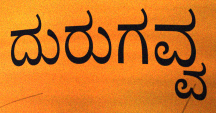
ದುರುಗವ್ವ